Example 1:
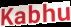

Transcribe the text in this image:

Kabhu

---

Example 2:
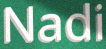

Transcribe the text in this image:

Nadi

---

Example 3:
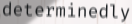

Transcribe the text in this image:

determinedly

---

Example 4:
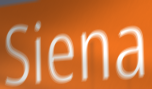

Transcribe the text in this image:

Siena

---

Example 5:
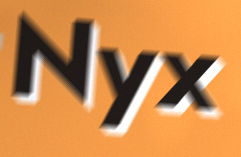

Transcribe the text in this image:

Nyx